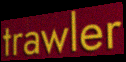
trawler